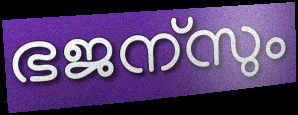
ഭജന്സും